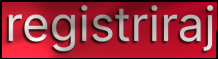
registriraj